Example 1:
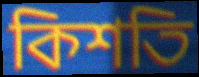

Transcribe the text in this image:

কিশতি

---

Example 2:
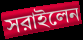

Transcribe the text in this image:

সরাইলেন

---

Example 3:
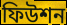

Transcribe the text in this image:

ফিউশন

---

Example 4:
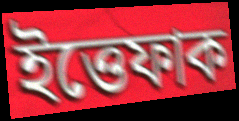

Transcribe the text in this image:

ইত্তেফাক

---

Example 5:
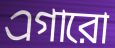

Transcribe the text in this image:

এগারো